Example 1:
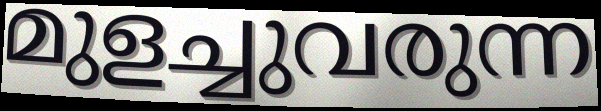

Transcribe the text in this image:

മുളച്ചുവരുന്ന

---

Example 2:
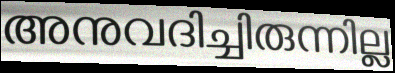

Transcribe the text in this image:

അനുവദിച്ചിരുന്നില്ല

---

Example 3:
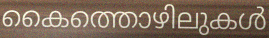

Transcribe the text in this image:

കൈത്തൊഴിലുകൾ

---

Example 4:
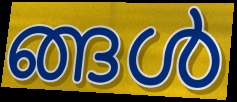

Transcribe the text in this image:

ങ്ങൾ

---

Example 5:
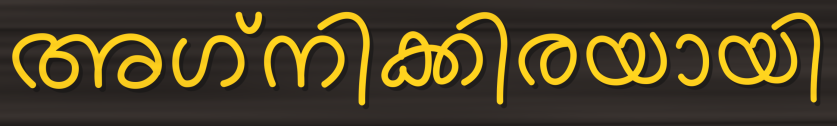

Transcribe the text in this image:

അഗ്‌നിക്കിരയായി